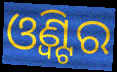
ଓ୍ଵିଣ୍ଟର